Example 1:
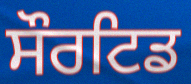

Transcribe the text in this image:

ਸੌਰਟਿਡ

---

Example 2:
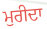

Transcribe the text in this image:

ਮੁਰੀਦਾ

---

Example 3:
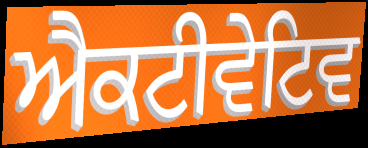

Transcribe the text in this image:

ਐਕਟੀਵੇਟਿਵ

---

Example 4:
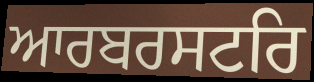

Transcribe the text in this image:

ਆਰਬਰਸਟਰਿ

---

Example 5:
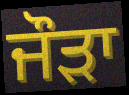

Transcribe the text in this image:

ਜੌੜਾ